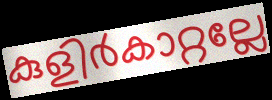
കുളിർകാറ്റല്ലേ